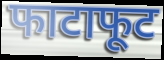
फाटाफूट